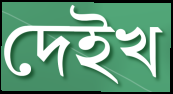
দেইখ